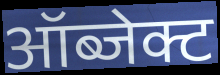
ऑब्जेक्ट